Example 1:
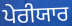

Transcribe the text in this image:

ਪੇਰੀਯਾਰ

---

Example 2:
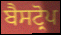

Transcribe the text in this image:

ਬੈਸਟ੍ਰੋਪ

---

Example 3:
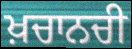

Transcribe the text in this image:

ਖ਼ਚਾਨਚੀ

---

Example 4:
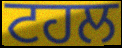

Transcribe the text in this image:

ਟਹਲ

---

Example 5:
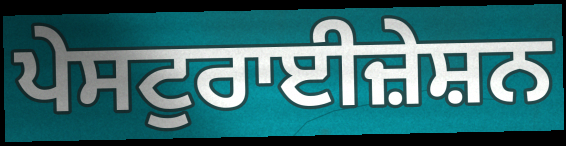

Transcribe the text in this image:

ਪੇਸਟੁਰਾਈਜ਼ੇਸ਼ਨ